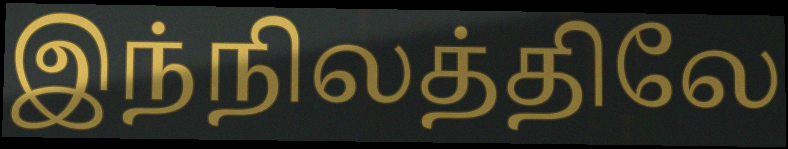
இந்நிலத்திலே